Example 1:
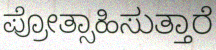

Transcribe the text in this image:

ಪ್ರೋತ್ಸಾಹಿಸುತ್ತಾರೆ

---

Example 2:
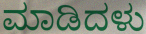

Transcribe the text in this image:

ಮಾಡಿದಳು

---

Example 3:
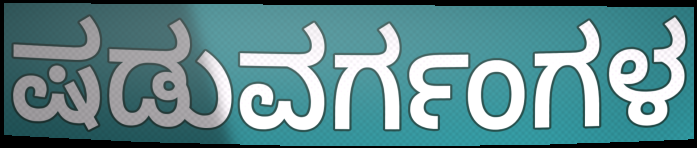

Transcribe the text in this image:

ಷಡುವರ್ಗಂಗಳ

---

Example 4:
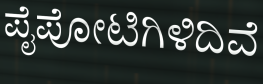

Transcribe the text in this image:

ಪೈಪೋಟಿಗಿಳಿದಿವೆ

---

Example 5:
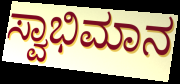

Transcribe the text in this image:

ಸ್ವಾಭಿಮಾನ